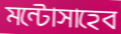
মন্টোসাহেব